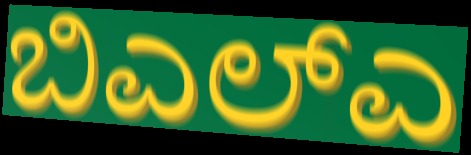
ಬಿಎಲ್ಎ